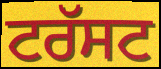
ਟਰੱਸਟ